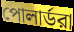
পোলার্ডরা